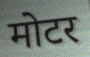
मोटर